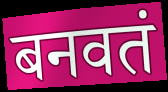
बनवतं